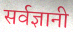
सर्वज्ञानी